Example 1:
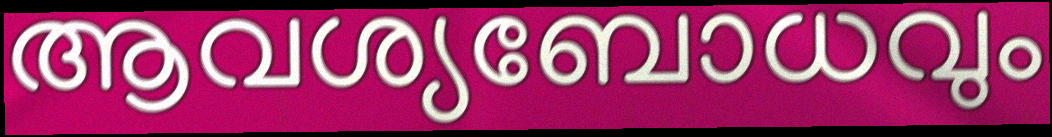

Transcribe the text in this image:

ആവശ്യബോധവും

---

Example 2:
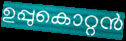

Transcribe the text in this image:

ഉപ്പുകൊറ്റൻ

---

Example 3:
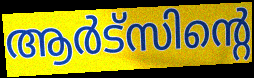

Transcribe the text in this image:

ആർട്സിന്റെ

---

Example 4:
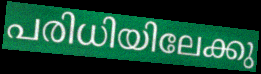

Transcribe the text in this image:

പരിധിയിലേക്കു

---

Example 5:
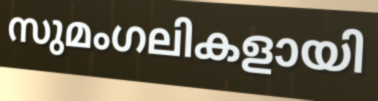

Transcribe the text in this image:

സുമംഗലികളായി